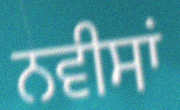
ਨਵੀਸਾਂ